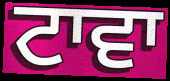
ਟਾਵਾ